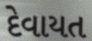
દેવાયત